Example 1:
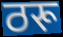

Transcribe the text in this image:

ठरू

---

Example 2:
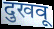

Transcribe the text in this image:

दुखवू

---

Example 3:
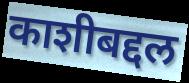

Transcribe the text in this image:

काशीबद्दल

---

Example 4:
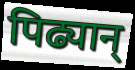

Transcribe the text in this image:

पिढ्यान्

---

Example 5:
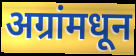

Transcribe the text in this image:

अग्रांमधून